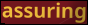
assuring